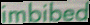
imbibed